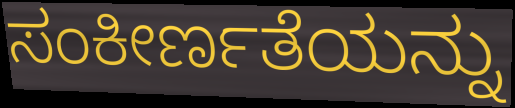
ಸಂಕೀರ್ಣತೆಯನ್ನು